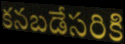
కనబడేసరికి